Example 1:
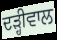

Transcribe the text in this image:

ਦੜ੍ਹੀਵਾਲ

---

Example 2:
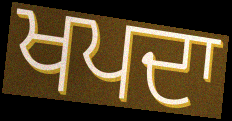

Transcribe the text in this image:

ਖਪਦਾ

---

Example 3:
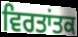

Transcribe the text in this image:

ਵਿਰਤਾਂਤਕ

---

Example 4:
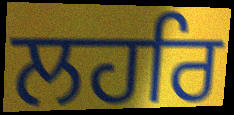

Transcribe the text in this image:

ਲਹਰਿ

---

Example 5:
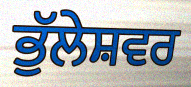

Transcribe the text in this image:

ਭੁੱਲੇਸ਼ਵਰ